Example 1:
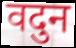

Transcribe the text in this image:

वदुन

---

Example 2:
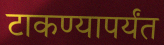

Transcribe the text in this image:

टाकण्यापर्यंत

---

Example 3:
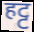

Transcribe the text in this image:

हट्ट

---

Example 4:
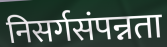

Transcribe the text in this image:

निसर्गसंपन्नता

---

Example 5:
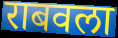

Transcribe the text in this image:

राबवला